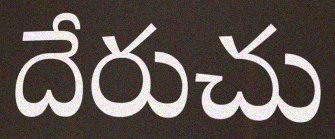
దేరుచు